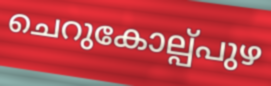
ചെറുകോല്പ്പുഴ